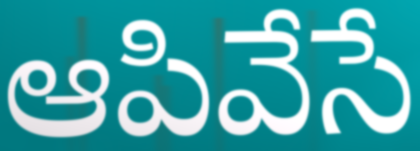
ఆపివేసే